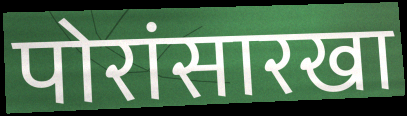
पोरांसारखा